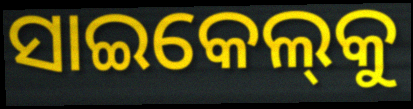
ସାଇକେଲ୍‌କୁ